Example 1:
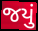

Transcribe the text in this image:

જયું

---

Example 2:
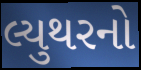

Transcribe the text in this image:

લ્યુથરનો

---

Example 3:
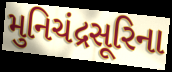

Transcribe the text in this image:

મુનિચંદ્રસૂરિના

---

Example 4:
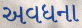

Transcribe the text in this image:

અવધના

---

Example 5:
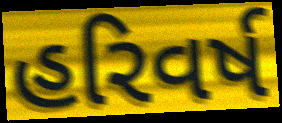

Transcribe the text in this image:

હરિવર્ષ